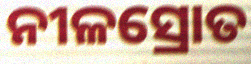
ନୀଳସ୍ରୋତ